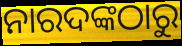
ନାରଦଙ୍କଠାରୁ